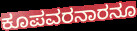
ಕೂಪವರನಾರನೂ